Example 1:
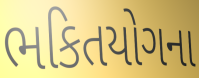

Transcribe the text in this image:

ભકિતયોગના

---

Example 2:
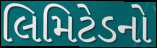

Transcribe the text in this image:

લિમિટેડનો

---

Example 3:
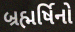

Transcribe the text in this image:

બ્રહ્મર્ષિનો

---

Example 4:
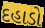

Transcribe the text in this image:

દહાડો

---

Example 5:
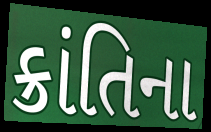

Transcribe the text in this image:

ક્રાંતિના